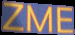
ZME